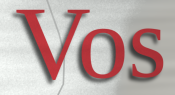
Vos